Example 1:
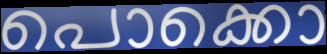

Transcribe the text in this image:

പൊക്കൊ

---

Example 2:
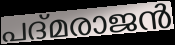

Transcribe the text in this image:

പദ്മരാജൻ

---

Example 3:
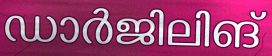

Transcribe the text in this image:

ഡാർജിലിങ്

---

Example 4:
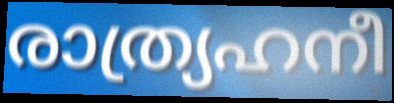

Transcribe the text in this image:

രാത്ര്യഹനീ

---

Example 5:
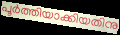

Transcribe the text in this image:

പൂർത്തിയാക്കിയതിനു